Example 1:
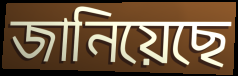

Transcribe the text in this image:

জানিয়েছে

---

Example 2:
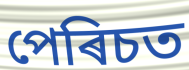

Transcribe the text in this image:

পেৰিচত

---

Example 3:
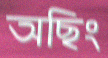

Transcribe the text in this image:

অছিং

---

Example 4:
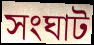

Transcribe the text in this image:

সংঘাট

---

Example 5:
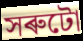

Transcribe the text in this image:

সৰুটো